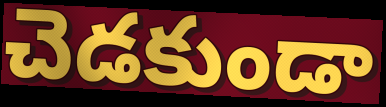
చెడకుండా